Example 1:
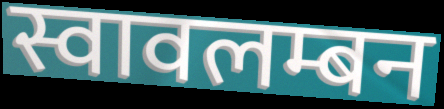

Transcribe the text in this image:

स्वावलम्बन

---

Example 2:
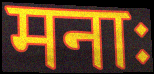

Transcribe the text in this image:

मनाः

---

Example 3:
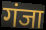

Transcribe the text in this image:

गंजा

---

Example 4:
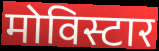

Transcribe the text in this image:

मोविस्टार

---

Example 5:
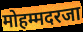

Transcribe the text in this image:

मोहम्मदरजा